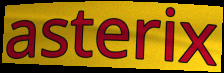
asterix